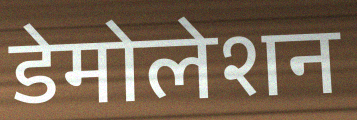
डेमोलेशन